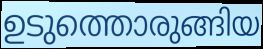
ഉടുത്തൊരുങ്ങിയ